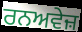
ਰਨਅਵੇਜ਼